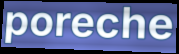
poreche